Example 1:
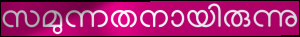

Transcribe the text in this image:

സമുന്നതനായിരുന്നു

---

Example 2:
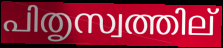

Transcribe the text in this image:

പിതൃസ്വത്തില്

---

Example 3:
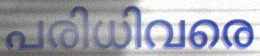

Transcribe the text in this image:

പരിധിവരെ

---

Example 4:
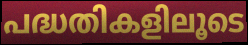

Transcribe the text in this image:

പദ്ധതികളിലൂടെ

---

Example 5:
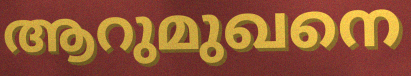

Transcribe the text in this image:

ആറുമുഖനെ